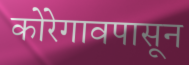
कोरेगावपासून